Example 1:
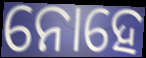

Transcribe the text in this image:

ନୋହେ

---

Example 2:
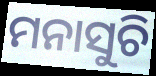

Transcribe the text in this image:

ମନାସୁଚି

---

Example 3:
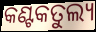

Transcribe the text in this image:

କଣ୍ଟକତୁଲ୍ୟ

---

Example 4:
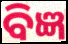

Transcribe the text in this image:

ବିଜ୍ଞ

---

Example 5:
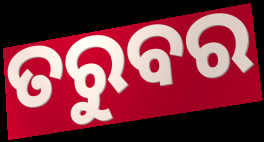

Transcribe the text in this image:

ତରୁବର